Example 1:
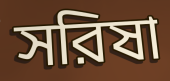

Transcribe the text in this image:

সরিষা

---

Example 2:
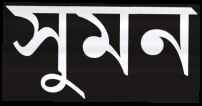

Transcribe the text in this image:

সুমন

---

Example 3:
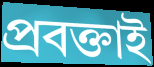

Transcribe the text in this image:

প্রবক্তাই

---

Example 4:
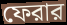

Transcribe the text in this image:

ফেরার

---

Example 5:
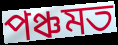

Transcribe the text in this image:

পঞ্চমত